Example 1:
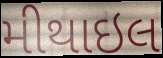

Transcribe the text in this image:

મીથાઇલ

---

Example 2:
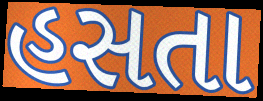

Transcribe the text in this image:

હસતા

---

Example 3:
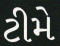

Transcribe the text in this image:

ટીમે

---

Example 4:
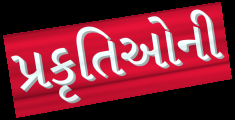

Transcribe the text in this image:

પ્રકૃતિઓની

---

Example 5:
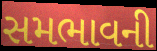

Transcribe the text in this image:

સમભાવની